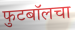
फुटबॉलचा